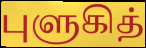
புளுகித்